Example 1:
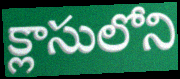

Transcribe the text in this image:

క్లాసులోని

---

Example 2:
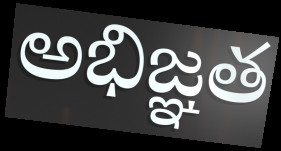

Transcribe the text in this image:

అభిజ్ఞత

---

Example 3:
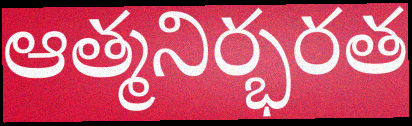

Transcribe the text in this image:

ఆత్మనిర్భరత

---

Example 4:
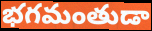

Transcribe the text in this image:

భగమంతుడా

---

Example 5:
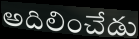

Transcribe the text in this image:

అదిలించేడు